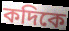
কদিকে